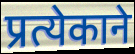
प्रत्येकाने